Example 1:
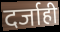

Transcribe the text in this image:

दर्जाही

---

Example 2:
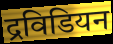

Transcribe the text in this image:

द्रविडियन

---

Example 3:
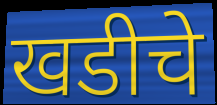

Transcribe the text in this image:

खडीचे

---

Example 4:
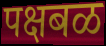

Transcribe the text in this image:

पक्षबळ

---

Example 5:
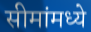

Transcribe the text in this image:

सीमांमध्ये